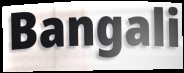
Bangali